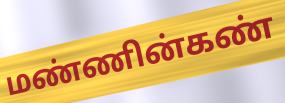
மண்ணின்கண்